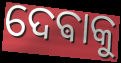
ଦେଵାକୁ